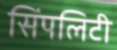
सिंपलिटी